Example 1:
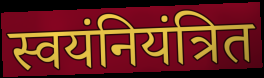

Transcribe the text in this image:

स्वयंनियंत्रित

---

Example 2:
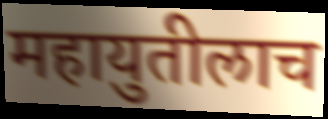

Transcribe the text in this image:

महायुतीलाच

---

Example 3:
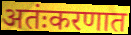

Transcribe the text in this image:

अतंःकरणात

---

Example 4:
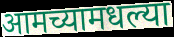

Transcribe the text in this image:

आमच्यामधल्या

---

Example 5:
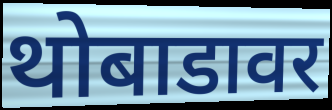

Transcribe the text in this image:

थोबाडावर